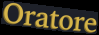
Oratore